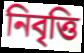
নিবৃত্তি